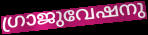
ഗ്രാജുവേഷനു